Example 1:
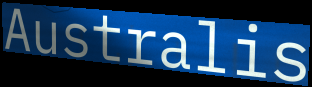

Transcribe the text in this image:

Australis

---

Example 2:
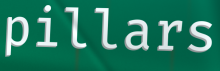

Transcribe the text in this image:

pillars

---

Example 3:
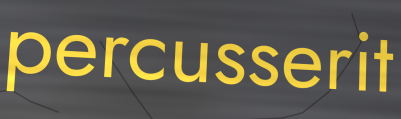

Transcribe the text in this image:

percusserit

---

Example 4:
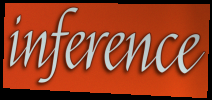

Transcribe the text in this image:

inference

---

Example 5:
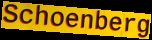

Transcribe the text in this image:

Schoenberg